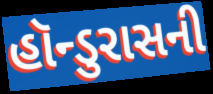
હૉન્ડુરાસની